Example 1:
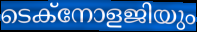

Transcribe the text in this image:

ടെക്നോളജിയും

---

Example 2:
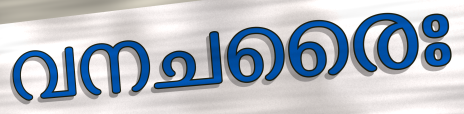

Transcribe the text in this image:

വനചരൈഃ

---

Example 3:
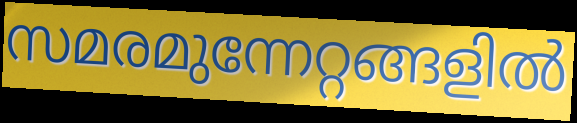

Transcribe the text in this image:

സമരമുന്നേറ്റങ്ങളിൽ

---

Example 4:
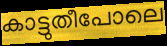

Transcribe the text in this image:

കാട്ടുതീപോലെ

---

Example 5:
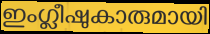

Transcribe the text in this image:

ഇംഗ്ലീഷുകാരുമായി